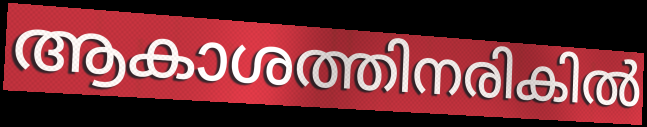
ആകാശത്തിനരികിൽ